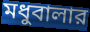
মধুবালার